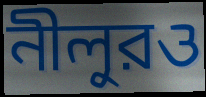
নীলুরও